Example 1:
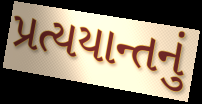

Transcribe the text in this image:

પ્રત્યયાન્તનું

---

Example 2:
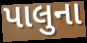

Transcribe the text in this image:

પાલુના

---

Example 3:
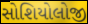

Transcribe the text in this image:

સોશિયોલોજી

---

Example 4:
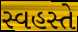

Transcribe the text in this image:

સ્વહસ્તે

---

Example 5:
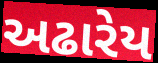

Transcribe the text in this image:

અઢારેય